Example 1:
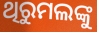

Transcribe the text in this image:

ଥିରୁମଲଙ୍କୁ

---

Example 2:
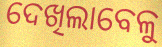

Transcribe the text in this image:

ଦେଖିଲାବେଳୁ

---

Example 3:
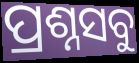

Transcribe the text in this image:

ପ୍ରଶ୍ନସବୁ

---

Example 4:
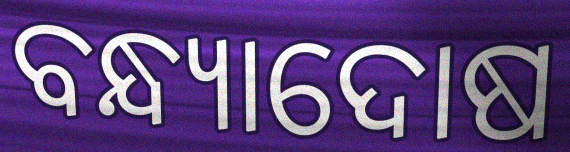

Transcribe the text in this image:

ବନ୍ଧ୍ୟାଦୋଷ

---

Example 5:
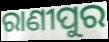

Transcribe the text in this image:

ରାଣୀପୁର